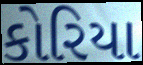
કોરિયા